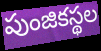
పుంజికస్థల